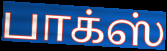
பாக்ஸ்